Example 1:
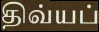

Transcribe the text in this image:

திவ்யப்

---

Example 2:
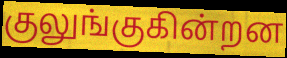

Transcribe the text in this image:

குலுங்குகின்றன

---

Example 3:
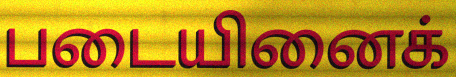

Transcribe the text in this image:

படையினைக்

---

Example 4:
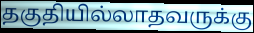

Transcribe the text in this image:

தகுதியில்லாதவருக்கு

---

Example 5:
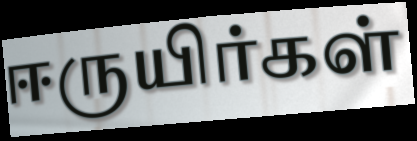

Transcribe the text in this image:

ஈருயிர்கள்